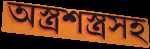
অস্ত্রশস্ত্রসহ